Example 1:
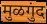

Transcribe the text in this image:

मुळगुंद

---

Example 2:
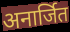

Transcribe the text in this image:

अनार्जित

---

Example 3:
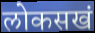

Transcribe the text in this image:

लोकसखं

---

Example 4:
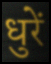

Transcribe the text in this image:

धुरें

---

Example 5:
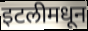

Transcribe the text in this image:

इटलीमधून